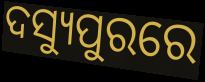
ଦସ୍ୟୁପୁରରେ